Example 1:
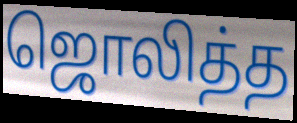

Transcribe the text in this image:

ஜொலித்த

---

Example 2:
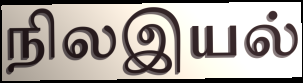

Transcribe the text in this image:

நிலஇயல்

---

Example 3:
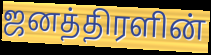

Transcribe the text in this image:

ஜனத்திரளின்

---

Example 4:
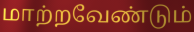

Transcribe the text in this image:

மாற்றவேண்டும்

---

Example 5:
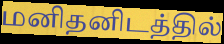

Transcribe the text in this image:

மனிதனிடத்தில்